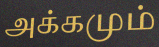
அக்கமும்